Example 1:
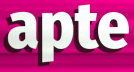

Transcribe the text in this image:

apte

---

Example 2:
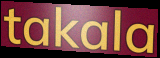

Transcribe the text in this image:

takala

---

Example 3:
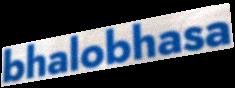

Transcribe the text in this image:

bhalobhasa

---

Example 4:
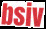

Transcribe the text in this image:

bsiv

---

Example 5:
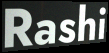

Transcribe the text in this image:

Rashi